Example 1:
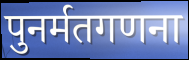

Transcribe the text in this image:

पुनर्मतगणना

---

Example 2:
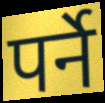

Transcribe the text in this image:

पर्ने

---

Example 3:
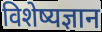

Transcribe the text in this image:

विशेष्यज्ञान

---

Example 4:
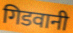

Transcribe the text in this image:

गिडवानी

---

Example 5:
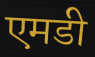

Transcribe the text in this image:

एमडी